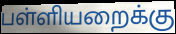
பள்ளியறைக்கு